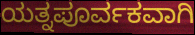
ಯತ್ನಪೂರ್ವಕವಾಗಿ